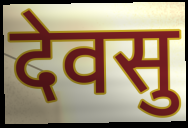
देवसु